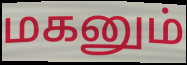
மகனும்